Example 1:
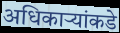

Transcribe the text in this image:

अधिकार्‍यांकडे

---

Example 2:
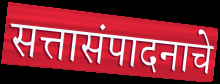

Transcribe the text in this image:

सत्तासंपादनाचे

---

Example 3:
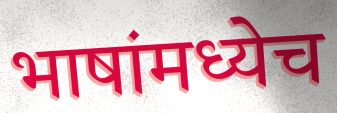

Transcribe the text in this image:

भाषांमध्येच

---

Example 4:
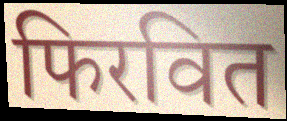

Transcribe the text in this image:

फिरवित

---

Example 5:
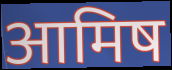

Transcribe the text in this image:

आमिष